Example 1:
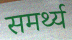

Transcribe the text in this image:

समर्थ्य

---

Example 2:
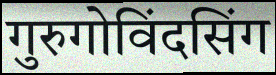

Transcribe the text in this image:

गुरुगोविंदसिंग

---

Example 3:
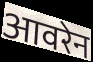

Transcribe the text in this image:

आवरेन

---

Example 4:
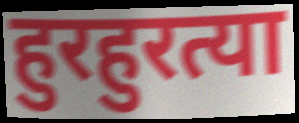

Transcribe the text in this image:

हुरहुरत्या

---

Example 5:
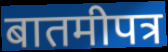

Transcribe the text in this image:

बातमीपत्र